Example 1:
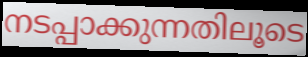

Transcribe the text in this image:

നടപ്പാക്കുന്നതിലൂടെ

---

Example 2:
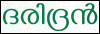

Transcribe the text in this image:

ദരിദ്രൻ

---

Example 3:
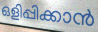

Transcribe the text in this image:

ഒളിപ്പിക്കാൻ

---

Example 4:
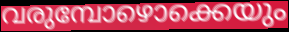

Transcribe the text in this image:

വരുമ്പോഴൊക്കെയും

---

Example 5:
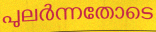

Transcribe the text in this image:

പുലർന്നതോടെ